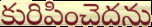
కురిపించెదను